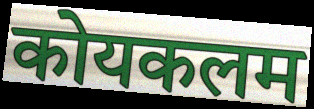
कोयकलम